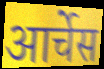
आर्चेस